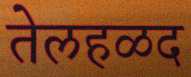
तेलहळद